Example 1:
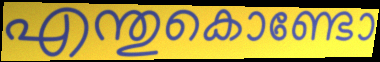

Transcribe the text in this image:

എന്തുകൊണ്ടോ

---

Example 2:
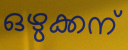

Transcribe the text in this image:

ഒഴുക്കന്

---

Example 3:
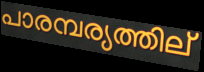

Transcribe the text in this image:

പാരമ്പര്യത്തില്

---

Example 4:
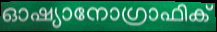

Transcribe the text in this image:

ഓഷ്യാനോഗ്രാഫിക്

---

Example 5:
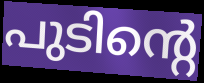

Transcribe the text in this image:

പുടിന്റെ